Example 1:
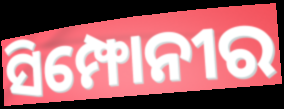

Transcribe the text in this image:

ସିମ୍ଫୋନୀର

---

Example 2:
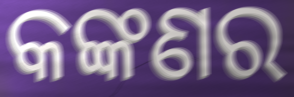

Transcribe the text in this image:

କଙ୍କଣର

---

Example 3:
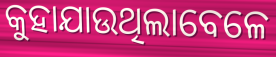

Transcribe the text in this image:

କୁହାଯାଉଥିଲାବେଳେ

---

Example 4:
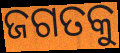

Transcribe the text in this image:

ଜଗତକୁ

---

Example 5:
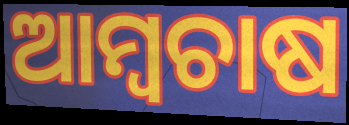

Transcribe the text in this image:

ଆମ୍ୱଚାଷ